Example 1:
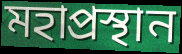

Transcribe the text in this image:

মহাপ্রস্থান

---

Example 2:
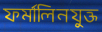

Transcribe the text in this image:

ফর্মালিনযুক্ত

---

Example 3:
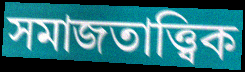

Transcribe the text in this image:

সমাজতাত্ত্বিক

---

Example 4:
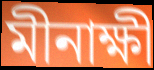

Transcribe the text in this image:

মীনাক্ষী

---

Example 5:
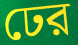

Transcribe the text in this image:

ঢের